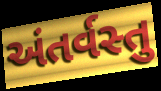
અંતર્વસ્તુ